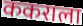
ककराला